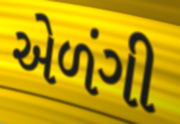
એળંગી